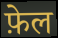
फ़ेल